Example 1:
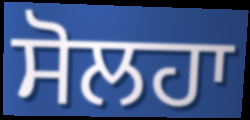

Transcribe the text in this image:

ਸੋਲਹਾ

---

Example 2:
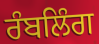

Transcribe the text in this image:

ਰੰਬਲਿੰਗ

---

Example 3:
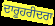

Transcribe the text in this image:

ਦਾਰੂਹਰੀਦਰਾ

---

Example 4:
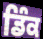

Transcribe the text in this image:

ਡਿੰਕ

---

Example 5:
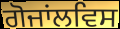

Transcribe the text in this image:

ਗੋਜਾਂਲਵਿਸ